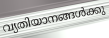
വ്യതിയാനങ്ങൾക്കു